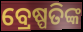
ବ୍ରେଷ୍ପତିଙ୍କ